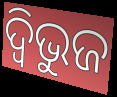
ଦ୍ଵିଭୁଜ